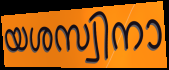
യശസ്വിനാ